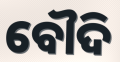
ବୌଦି